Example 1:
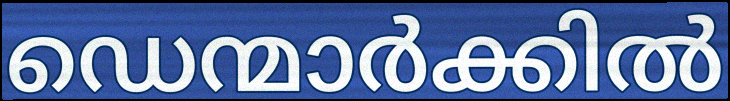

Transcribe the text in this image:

ഡെന്മാർക്കിൽ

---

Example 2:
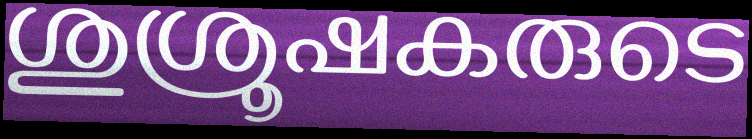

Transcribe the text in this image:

ശുശ്രൂഷകരുടെ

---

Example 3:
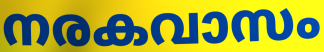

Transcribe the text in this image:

നരകവാസം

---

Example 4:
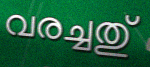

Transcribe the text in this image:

വരച്ചതു്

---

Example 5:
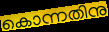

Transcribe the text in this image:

കൊന്നതിനു